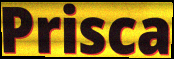
Prisca